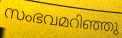
സംഭവമറിഞ്ഞു